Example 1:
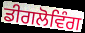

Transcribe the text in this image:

ਡੀਗਲੋਵਿੰਗ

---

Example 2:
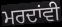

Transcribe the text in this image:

ਮਰਦਾਂਵੀ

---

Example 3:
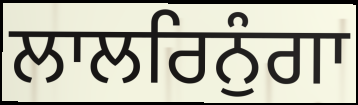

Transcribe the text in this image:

ਲਾਲਰਿਨੁੰਗਾ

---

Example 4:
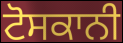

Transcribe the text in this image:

ਟੋਸਕਾਨੀ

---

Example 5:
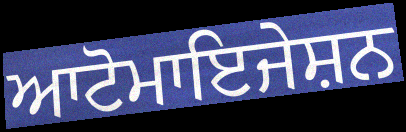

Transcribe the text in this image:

ਆਟੋਮਾਇਜੇਸ਼ਨ